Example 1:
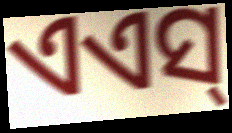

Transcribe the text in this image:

ଏଏସ୍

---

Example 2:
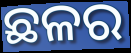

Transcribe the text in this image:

ଛଳର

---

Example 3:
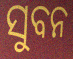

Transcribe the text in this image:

ସୁବନ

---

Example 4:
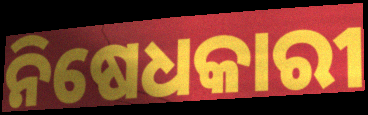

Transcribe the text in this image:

ନିଷେଧକାରୀ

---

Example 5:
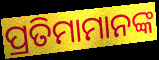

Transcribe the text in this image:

ପ୍ରତିମାମାନଙ୍କ